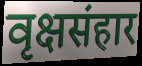
वृक्षसंहार